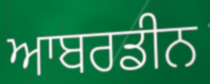
ਆਬਰਡੀਨ